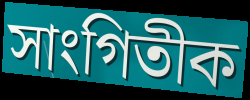
সাংগিতীক